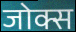
जोक्स